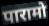
पारामो